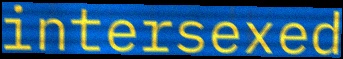
intersexed